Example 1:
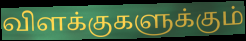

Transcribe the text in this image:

விளக்குகளுக்கும்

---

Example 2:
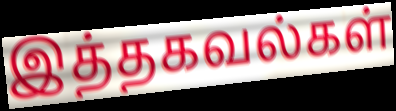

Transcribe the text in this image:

இத்தகவல்கள்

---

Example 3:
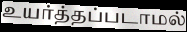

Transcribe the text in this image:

உயர்த்தப்படாமல்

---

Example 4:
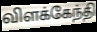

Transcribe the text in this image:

விளக்கேந்தி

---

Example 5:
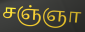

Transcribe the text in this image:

சஞ்ஞா